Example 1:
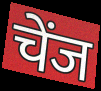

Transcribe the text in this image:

चेंज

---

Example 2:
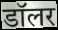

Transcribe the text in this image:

डॉलर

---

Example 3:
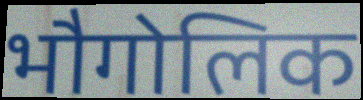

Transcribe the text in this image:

भौगोलिक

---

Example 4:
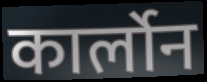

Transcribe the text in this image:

कार्लोन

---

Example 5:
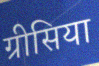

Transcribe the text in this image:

ग्रीसिया